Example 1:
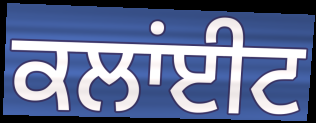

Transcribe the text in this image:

ਕਲਾਂਈਟ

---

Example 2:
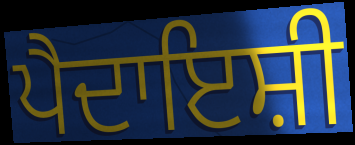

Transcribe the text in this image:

ਪੈਦਾਇਸ਼ੀ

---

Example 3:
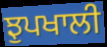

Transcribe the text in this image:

ਝੁਪਖਾਲੀ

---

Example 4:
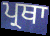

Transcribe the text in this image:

ਪ੍ਰਥਾ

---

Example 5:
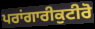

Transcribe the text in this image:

ਪਰਾਂਗਾਰੀਕੁਟੀਰੋ